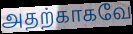
அதற்காகவே